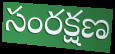
సంరక్షణ